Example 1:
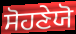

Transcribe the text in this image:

ਸੋਹਣੇਯੋ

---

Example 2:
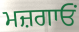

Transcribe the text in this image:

ਮਜ਼ਗਾਓਂ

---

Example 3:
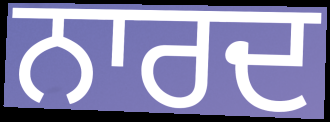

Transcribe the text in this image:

ਨਾਰਦ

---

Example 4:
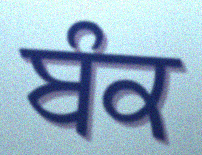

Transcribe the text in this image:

ਬੰਕ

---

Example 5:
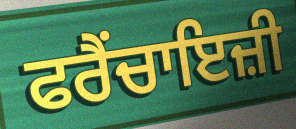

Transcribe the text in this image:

ਫਰੈਂਚਾਇਜ਼ੀ